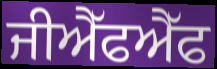
ਜੀਐੱਫਐੱਫ